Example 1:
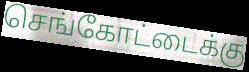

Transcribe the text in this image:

செங்கோட்டைக்கு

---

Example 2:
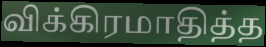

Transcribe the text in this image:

விக்கிரமாதித்த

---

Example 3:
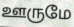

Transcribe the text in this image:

ஊருமே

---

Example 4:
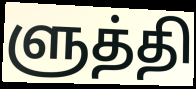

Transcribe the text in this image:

ளுத்தி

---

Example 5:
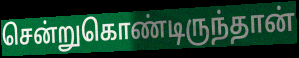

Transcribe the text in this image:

சென்றுகொண்டிருந்தான்